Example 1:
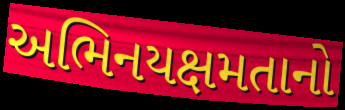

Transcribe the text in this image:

અભિનયક્ષમતાનો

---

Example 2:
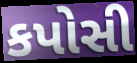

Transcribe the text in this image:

કપોસી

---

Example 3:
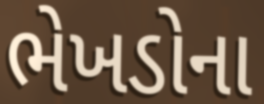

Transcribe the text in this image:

ભેખડોના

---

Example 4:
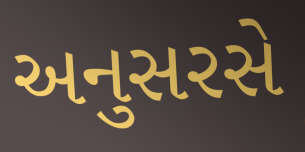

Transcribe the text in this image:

અનુસરસે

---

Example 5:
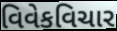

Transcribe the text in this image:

વિવેકવિચાર